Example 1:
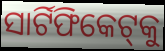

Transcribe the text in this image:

ସାର୍ଟିଫିକେଟ୍‌କୁ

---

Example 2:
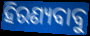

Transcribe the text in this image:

ହିରଣ୍ୟବାବୁ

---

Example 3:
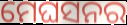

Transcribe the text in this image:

ମେଘସନର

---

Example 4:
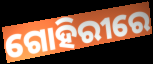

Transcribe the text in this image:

ଗୋହିରୀରେ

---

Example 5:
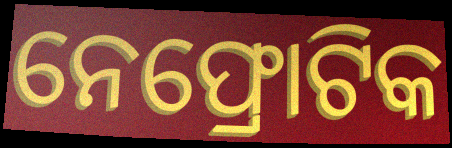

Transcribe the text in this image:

ନେଫ୍ରୋଟିକ